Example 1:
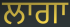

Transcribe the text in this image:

ਲਾਗਾ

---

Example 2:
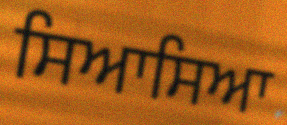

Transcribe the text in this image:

ਸਿਆਸਿਆ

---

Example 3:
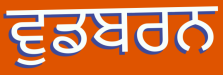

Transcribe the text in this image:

ਵੁਡਬਰਨ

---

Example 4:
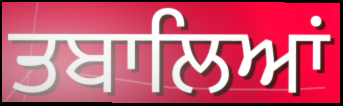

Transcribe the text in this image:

ਤਬਾਲਿਆਂ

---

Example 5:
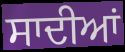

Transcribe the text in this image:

ਸਾਦੀਆਂ